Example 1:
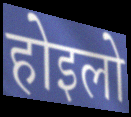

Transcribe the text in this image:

होइलो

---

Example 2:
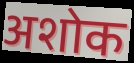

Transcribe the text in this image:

अशोक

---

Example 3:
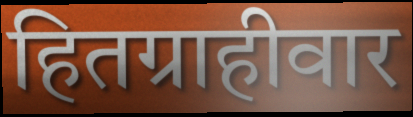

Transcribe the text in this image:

हितग्राहीवार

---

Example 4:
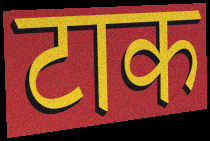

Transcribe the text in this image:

टाक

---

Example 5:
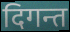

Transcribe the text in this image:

दिगन्त